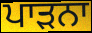
ਪਾੜਨਾ